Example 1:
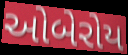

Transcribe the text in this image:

ઓબેરોય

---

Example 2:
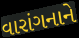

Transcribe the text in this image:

વારાંગનાને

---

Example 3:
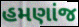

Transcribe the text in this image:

હમણાંજ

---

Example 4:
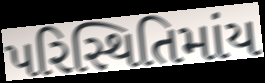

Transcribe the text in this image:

પરિસ્થિતિમાંય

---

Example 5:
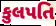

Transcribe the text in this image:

કુલપતિ